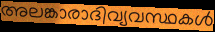
അലങ്കാരാദിവ്യവസ്ഥകൾ